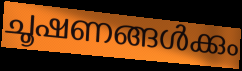
ചൂഷണങ്ങൾക്കും